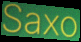
Saxo